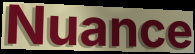
Nuance